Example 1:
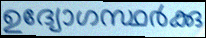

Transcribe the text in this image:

ഉദ്യോഗസ്ഥർക്കു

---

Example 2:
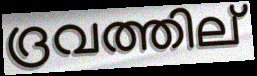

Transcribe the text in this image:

ദ്രവത്തില്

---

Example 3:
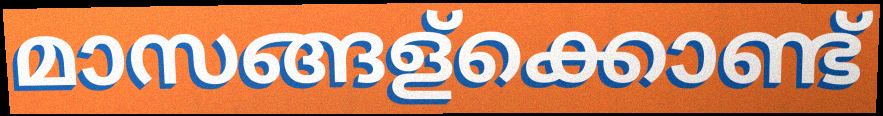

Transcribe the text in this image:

മാസങ്ങള്ക്കൊണ്ട്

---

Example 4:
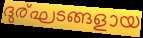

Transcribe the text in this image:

ദുര്ഘടങ്ങളായ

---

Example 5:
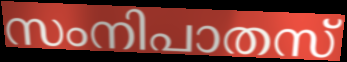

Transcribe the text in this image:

സംനിപാതസ്